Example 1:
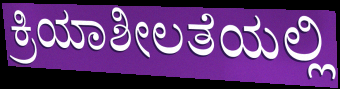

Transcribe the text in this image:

ಕ್ರಿಯಾಶೀಲತೆಯಲ್ಲಿ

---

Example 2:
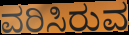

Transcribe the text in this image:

ವರಿಸಿರುವ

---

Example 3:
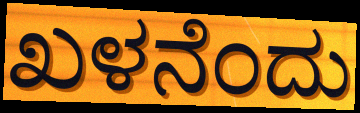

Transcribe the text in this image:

ಖಳನೆಂದು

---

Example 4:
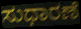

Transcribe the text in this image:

ಸುಧಾರಣೆ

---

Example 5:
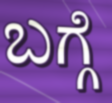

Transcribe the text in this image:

ಬಗ್ಗೆ